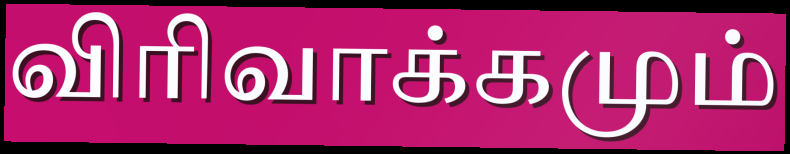
விரிவாக்கமும்